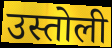
उस्तोली